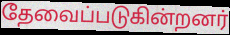
தேவைப்படுகின்றனர்